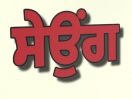
ਸੇਉਂਗ